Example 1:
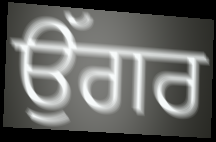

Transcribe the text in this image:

ਉੱਗਰ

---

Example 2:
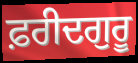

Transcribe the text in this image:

ਫ਼ਰੀਦਗੁਰੂ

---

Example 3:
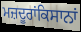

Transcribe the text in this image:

ਮਜ਼ਦੂਰਾਂਕਿਸਾਨਾਂ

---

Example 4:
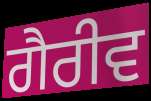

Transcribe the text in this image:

ਗੈਰੀਵ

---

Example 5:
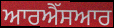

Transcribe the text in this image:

ਆਰਐੱਸਆਰ